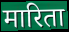
मारिता